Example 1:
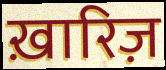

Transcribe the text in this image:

ख़ारिज़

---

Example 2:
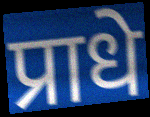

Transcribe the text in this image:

प्राधे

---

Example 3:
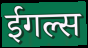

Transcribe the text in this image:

ईगल्स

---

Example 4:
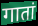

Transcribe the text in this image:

गातां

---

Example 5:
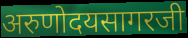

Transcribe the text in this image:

अरुणोदयसागरजी